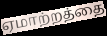
ஏமாற்றத்தை